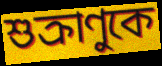
শুক্রাণুকে